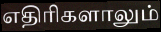
எதிரிகளாலும்